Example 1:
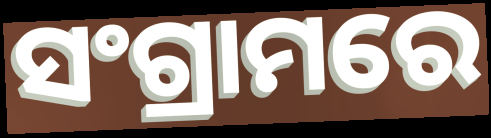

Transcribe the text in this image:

ସଂଗ୍ରାମରେ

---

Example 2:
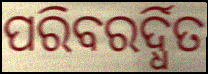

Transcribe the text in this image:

ପରିବରର୍ଦ୍ଧିତ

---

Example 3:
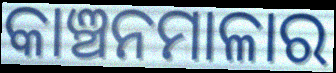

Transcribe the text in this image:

କାଞ୍ଚନମାଳାର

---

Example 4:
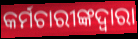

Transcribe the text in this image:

କର୍ମଚାରୀଙ୍କଦ୍ୱାରା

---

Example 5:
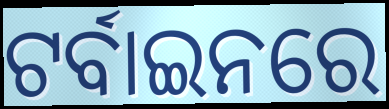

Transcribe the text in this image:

ଟର୍ବାଇନରେ